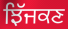
ਝਿੱਜਕਣ